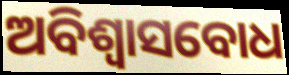
ଅବିଶ୍ୱାସବୋଧ